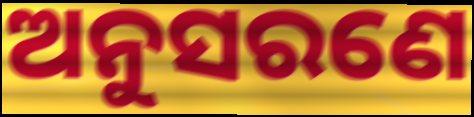
ଅନୁସରଣେ